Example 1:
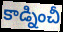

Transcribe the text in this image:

కాడ్నించీ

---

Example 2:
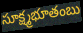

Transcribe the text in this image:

సూక్ష్మభూతంబు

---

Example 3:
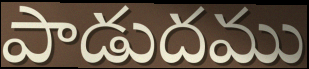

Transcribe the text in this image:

పాడుదము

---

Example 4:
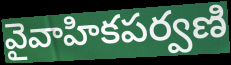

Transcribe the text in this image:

వైవాహికపర్వణి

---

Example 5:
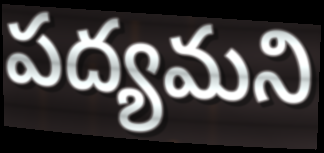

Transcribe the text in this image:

పద్యమని